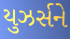
યુઝર્સને